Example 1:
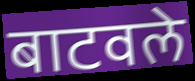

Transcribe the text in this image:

बाटवले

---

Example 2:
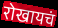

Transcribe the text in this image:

रोखायचं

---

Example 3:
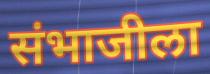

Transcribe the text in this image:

संभाजीला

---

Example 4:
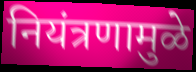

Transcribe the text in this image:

नियंत्रणामुळे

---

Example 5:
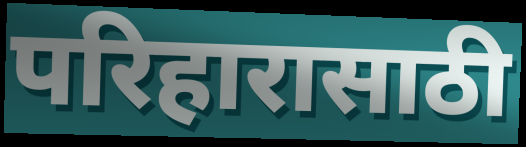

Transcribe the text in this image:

परिहारासाठी